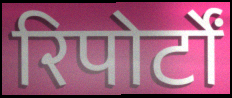
रिपोर्टों